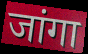
जांगा